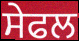
ਸੇਫਲ